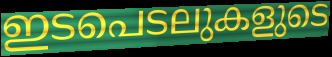
ഇടപെടലുകളുടെ